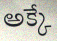
అక్కే